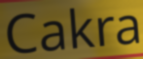
Cakra